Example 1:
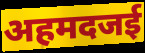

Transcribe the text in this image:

अहमदजई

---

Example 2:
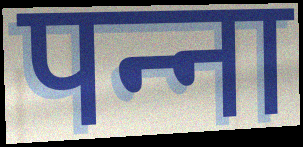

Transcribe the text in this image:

पन्ना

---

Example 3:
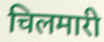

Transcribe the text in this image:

चिलमारी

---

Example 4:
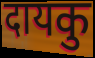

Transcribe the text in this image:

दायकु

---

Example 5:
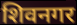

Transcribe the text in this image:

शिवनगर